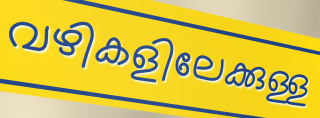
വഴികളിലേക്കുള്ള